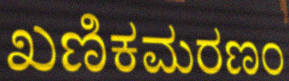
ಖಣಿಕಮರಣಂ